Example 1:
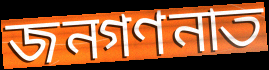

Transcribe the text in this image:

জনগণনাত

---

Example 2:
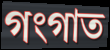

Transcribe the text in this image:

গংগাত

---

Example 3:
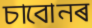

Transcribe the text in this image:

চাবোনৰ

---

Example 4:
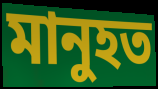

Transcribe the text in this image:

মানুহত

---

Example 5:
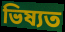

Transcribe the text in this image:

ভিষ্যত